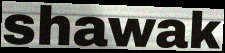
shawak